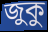
জুকু